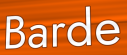
Barde